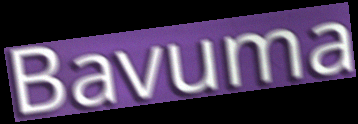
Bavuma